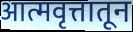
आत्मवृत्तातून